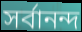
সর্বানন্দ